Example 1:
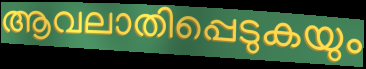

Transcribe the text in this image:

ആവലാതിപ്പെടുകയും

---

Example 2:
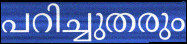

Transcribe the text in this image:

പറിച്ചുതരും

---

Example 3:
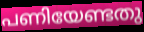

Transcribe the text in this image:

പണിയേണ്ടതു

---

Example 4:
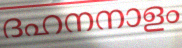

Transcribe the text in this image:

ദഹനനാളം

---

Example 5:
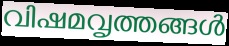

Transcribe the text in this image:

വിഷമവൃത്തങ്ങൾ